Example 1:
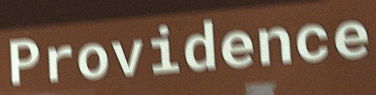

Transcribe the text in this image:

Providence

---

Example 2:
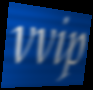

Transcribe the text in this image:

vvip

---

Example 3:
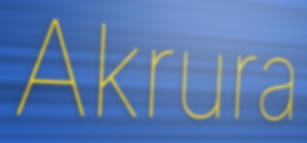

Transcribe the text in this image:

Akrura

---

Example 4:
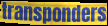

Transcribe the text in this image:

transponders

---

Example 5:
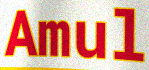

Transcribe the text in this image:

Amul